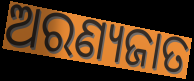
ଅରଣ୍ୟଜାତ